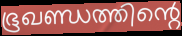
ഭൂഖണ്ഡത്തിന്റെ